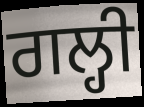
ਗਲ੍ਹੀ